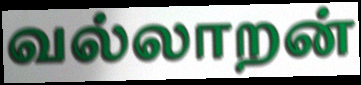
வல்லாறன்